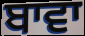
ਬਾਵਾ